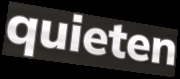
quieten